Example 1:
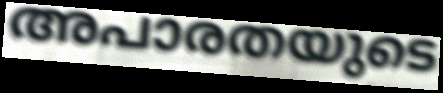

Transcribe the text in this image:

അപാരതയുടെ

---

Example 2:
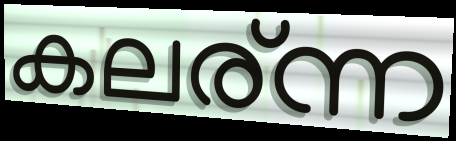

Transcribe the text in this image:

കലര്ന്ന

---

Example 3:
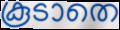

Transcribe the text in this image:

കൂടാതെ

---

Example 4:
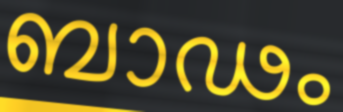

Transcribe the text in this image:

ബാഢം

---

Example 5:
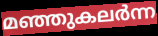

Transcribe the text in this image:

മഞ്ഞുകലർന്ന